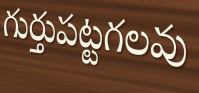
గుర్తుపట్టగలవు